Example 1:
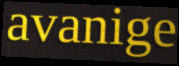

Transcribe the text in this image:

avanige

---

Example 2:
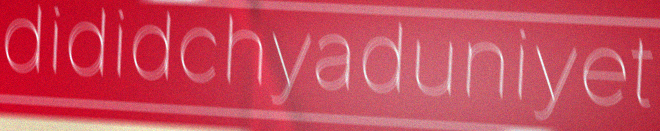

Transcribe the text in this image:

dididchyaduniyet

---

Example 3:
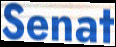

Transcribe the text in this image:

Senat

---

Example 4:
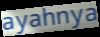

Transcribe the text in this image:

ayahnya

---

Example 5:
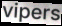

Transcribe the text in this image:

vipers